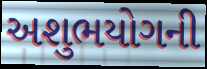
અશુભયોગની